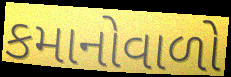
કમાનોવાળો